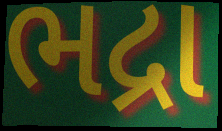
ભદ્રા